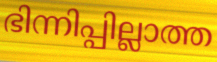
ഭിന്നിപ്പില്ലാത്ത